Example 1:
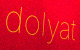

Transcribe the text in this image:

dolyat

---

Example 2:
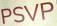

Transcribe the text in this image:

PSVP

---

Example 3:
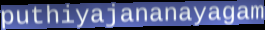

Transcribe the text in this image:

puthiyajananayagam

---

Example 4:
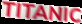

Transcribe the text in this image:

TITANIC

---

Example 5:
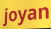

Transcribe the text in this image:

joyan